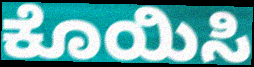
ಕೊಯಿಸಿ